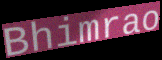
Bhimrao